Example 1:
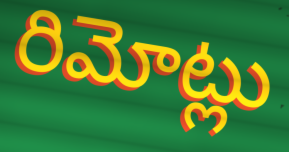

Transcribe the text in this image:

రిమోట్లు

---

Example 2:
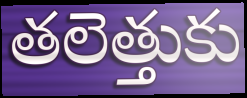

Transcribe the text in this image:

తలెత్తుకు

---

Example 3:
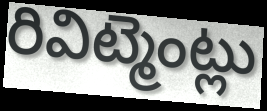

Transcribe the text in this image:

రివిట్మెంట్లు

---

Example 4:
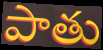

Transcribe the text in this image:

పాతు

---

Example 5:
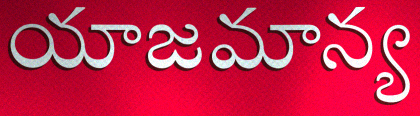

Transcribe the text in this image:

యాజమాన్య